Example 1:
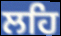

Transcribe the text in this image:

ਲਹਿ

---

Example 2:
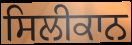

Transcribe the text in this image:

ਸਿਲੀਕਾਨ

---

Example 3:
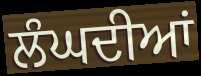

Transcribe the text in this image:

ਲੰਘਦੀਆਂ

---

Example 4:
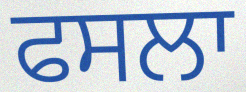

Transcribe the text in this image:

ਫਸਲਾ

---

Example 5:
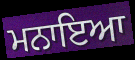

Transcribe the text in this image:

ਮਨਾਇਆ